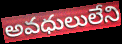
అవధులులేని